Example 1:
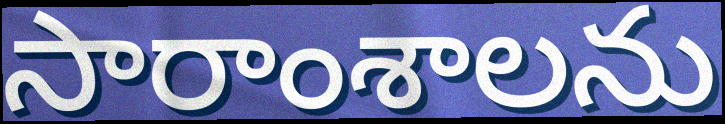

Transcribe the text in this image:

సారాంశాలను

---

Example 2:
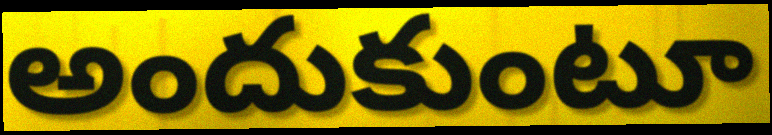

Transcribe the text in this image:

అందుకుంటూ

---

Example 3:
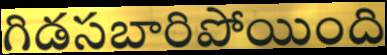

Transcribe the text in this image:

గిడసబారిపోయింది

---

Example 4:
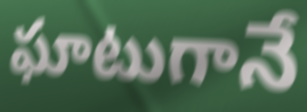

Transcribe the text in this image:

ఘాటుగానే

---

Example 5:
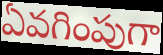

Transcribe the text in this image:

ఏవగింపుగా